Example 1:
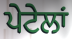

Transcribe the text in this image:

ਪੇਟੇਲਾਂ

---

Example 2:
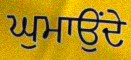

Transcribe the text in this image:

ਘੁਮਾਉਂਦੇ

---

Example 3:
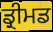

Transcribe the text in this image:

ਡ੍ਰੀਮਡ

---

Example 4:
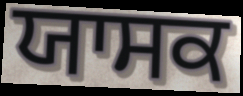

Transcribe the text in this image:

ਯਾਸਕ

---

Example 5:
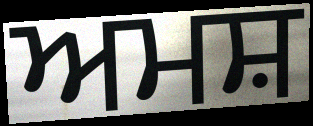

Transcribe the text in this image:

ਅਮਸ਼